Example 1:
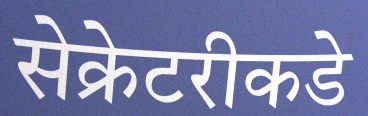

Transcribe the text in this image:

सेक्रेटरीकडे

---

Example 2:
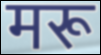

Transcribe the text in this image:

मरू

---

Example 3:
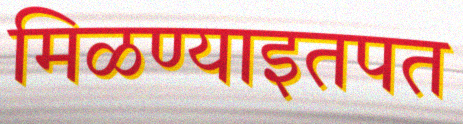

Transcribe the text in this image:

मिळण्याइतपत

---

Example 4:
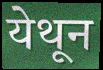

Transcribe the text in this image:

येथून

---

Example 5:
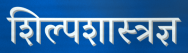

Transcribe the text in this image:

शिल्पशास्त्रज्ञ